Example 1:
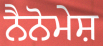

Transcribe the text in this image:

ਨੈਨੋਮੇਸ਼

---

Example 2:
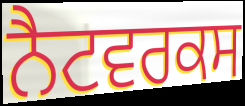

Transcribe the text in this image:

ਨੈਟਵਰਕਸ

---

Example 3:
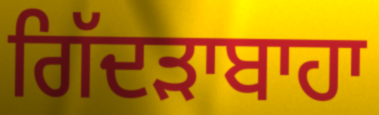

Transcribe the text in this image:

ਗਿੱਦੜਾਬਾਹਾ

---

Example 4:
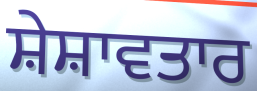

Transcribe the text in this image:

ਸ਼ੇਸ਼ਾਵਤਾਰ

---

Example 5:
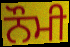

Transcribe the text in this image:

ਨੌਮੀ